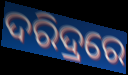
ଦରିଦ୍ରରେ